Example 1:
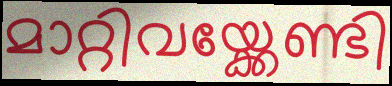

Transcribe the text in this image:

മാറ്റിവയ്ക്കേണ്ടി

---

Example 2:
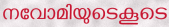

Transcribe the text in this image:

നവോമിയുടെകൂടെ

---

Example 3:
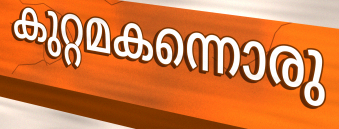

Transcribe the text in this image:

കുറ്റമകന്നൊരു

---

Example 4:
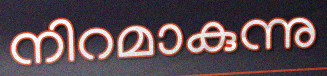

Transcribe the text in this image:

നിറമാകുന്നു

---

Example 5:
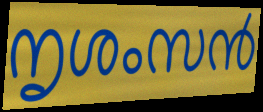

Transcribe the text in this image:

നൃശംസൻ